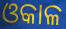
ଓକାଳ